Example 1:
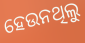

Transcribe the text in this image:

ହେଉନଥିଲୁ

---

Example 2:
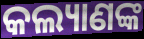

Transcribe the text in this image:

କଲ୍ୟାଣଙ୍କ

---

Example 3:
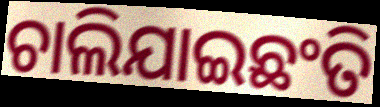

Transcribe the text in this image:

ଚାଲିଯାଇଛଂତି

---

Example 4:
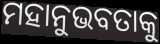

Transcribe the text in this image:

ମହାନୁଭବତାକୁ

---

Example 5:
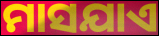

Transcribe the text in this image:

ମାସଯାଏ